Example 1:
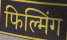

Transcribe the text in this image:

फिल्मिंग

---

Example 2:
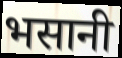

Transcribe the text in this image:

भसानी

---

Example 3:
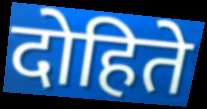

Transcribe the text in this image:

दोहिते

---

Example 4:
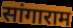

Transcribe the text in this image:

सांगाराम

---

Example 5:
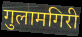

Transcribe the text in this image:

गुलामगिरी